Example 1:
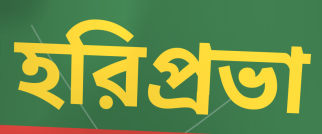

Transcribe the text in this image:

হরিপ্রভা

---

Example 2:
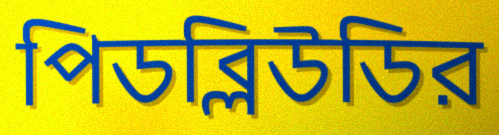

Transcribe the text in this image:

পিডব্লিউডির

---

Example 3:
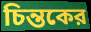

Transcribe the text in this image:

চিন্তকের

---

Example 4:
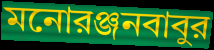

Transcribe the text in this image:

মনোরঞ্জনবাবুর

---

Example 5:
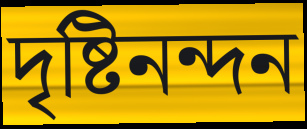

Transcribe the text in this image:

দৃষ্টিনন্দন